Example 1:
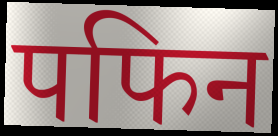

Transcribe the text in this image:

पफिन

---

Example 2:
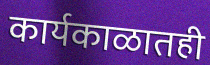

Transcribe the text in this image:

कार्यकाळातही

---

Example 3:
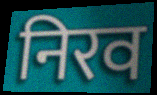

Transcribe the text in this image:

निरव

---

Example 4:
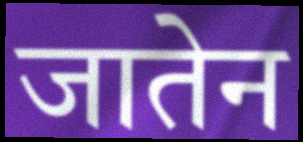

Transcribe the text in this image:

जातेन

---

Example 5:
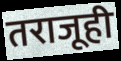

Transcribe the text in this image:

तराजूही